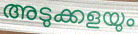
അടുക്കളയും